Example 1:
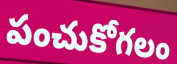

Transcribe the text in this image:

పంచుకోగలం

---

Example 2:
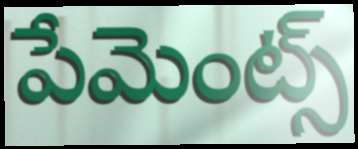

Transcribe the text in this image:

పేమెంట్స్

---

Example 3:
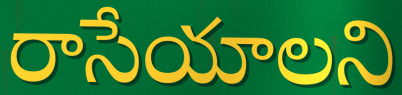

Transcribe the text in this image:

రాసేయాలని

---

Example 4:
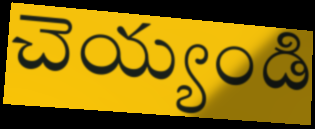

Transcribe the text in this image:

చెయ్యండి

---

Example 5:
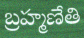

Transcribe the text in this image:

బ్రహ్మణేతి